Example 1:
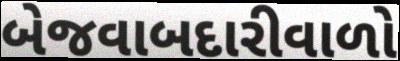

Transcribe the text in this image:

બેજવાબદારીવાળો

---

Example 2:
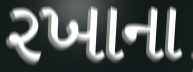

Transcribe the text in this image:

રખાના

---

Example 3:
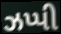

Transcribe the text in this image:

ઝપ્પી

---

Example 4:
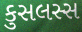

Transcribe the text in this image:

કુસલસ્સ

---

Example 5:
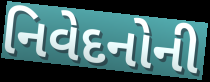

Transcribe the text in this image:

નિવેદનોની